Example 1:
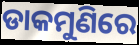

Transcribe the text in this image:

ଡାକମୁଣିରେ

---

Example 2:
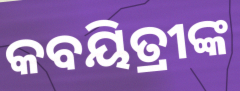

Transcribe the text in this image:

କବୟିତ୍ରୀଙ୍କ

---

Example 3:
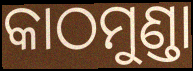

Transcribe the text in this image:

କାଠମୁଣ୍ଡା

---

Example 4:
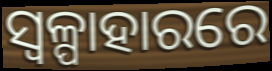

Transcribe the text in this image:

ସ୍ୱଳ୍ପାହାରରେ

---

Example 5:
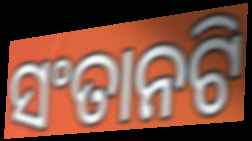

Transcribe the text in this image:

ସଂତାନଟି